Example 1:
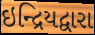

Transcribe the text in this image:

ઇન્દ્રિયદ્વારા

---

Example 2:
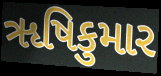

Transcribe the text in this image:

ૠષિકુમાર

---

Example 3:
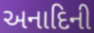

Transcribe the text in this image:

અનાદિની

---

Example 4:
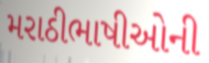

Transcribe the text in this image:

મરાઠીભાષીઓની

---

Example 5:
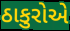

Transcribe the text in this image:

ઠાકુરોએ